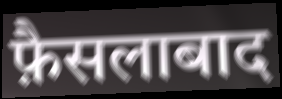
फ़ैसलाबाद